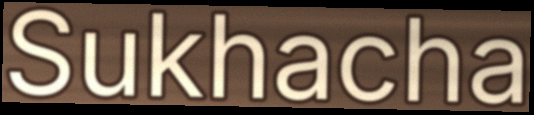
Sukhacha